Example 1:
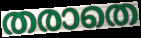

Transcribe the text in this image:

തരാതെ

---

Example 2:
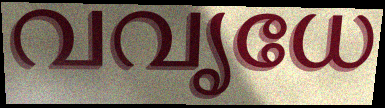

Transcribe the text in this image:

വവൃധേ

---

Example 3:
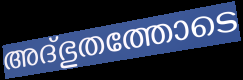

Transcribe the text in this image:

അദ്ഭുതത്തോടെ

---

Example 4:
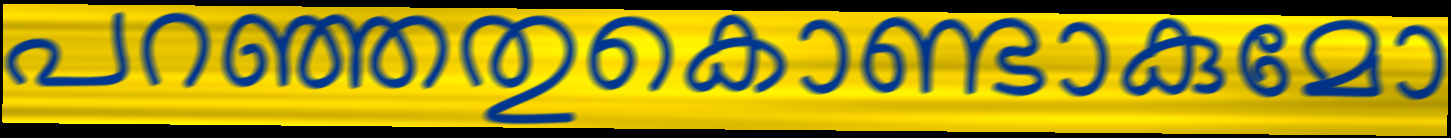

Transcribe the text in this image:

പറഞ്ഞതുകൊണ്ടാകുമോ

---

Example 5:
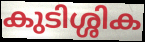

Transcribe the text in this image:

കുടിശ്ശിക